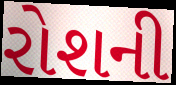
રોશની